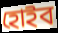
হোইব